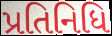
પ્રતિનિધિ